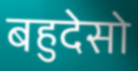
बहुदेसो